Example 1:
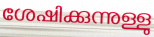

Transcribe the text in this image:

ശേഷിക്കുന്നുള്ളു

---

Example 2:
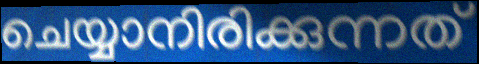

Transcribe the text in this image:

ചെയ്യാനിരിക്കുന്നത്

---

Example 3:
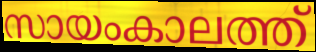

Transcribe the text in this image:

സായംകാലത്ത്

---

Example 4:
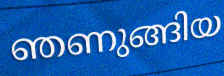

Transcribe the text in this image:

ഞണുങ്ങിയ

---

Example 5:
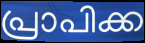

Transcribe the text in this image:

പ്രാപിക്ക